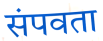
संपवता